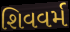
શિવવર્મ